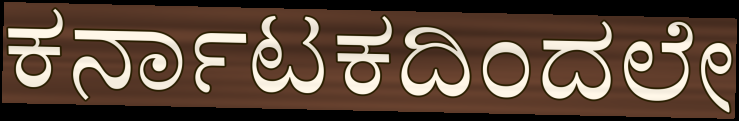
ಕರ್ನಾಟಕದಿಂದಲೇ